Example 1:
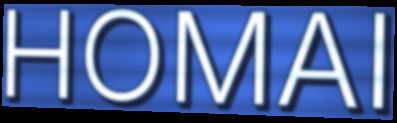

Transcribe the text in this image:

HOMAI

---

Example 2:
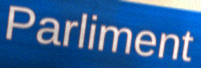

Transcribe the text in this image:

Parliment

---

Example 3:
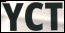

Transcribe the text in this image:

YCT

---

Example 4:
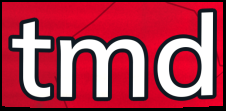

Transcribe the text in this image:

tmd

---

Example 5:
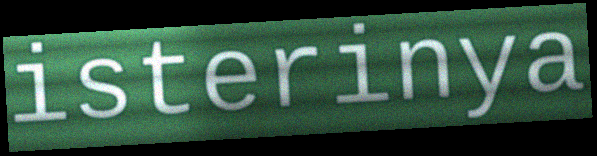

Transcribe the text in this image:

isterinya